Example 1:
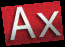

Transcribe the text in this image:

Ax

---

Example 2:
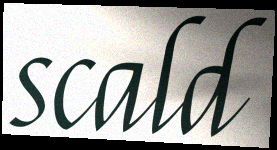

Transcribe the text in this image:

scald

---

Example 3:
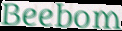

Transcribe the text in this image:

Beebom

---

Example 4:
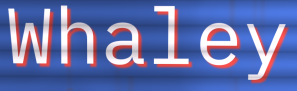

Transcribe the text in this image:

Whaley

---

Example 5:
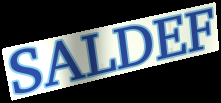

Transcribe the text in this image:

SALDEF